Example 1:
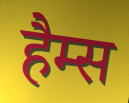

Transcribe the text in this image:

हैम्स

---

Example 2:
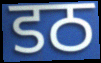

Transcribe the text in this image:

डठ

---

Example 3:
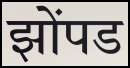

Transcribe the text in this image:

झोंपड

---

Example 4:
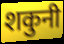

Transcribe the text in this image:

शकुनी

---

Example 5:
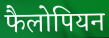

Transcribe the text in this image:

फैलोपियन